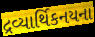
દ્રવ્યાર્થિકનયના